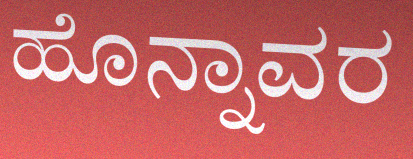
ಹೊನ್ನಾವರ